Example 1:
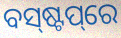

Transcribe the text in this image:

ବସ୍‌ଷ୍ଟପ୍‌ରେ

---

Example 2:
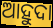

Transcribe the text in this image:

ଆହୁଦା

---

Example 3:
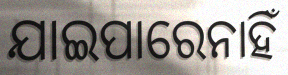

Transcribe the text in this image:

ଯାଇପାରେନାହିଁ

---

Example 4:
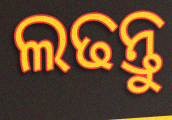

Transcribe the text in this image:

ଲଢନ୍ତୁ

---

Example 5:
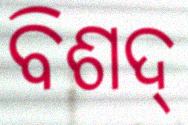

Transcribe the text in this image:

ବିଶଦ୍